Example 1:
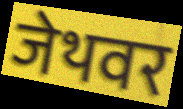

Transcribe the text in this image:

जेथवर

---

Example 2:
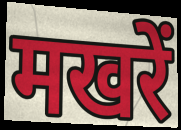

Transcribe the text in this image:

मखरें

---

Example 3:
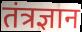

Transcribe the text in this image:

तंत्रज्ञान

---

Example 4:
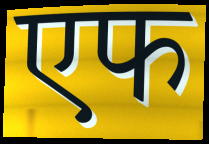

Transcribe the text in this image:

एफ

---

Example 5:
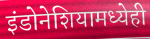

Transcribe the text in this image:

इंडोनेशियामध्येही